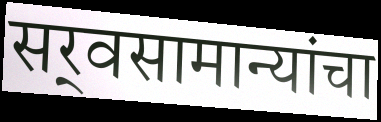
सर्वसामान्यांचा